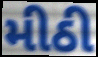
મીઠી